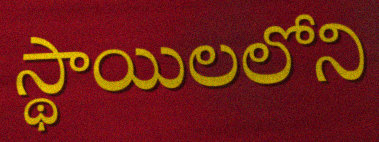
స్థాయిలలోని